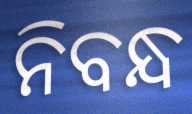
ନିବନ୍ଧ